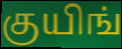
குயிங்